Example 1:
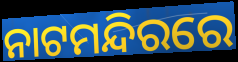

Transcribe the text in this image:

ନାଟମନ୍ଦିରରେ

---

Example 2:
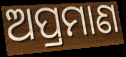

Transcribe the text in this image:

ଅପ୍ରମାଣ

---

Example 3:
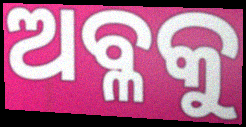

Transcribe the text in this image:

ଅବ୍ଳକୁ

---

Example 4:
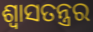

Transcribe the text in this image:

ଶ୍ଵାସତନ୍ତ୍ରର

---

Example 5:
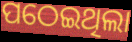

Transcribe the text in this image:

ପଠେଇଥିଲା